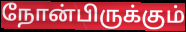
நோன்பிருக்கும்